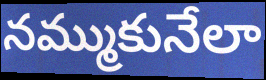
నమ్ముకునేలా